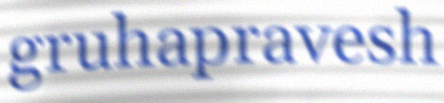
gruhapravesh